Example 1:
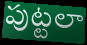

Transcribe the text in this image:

పుట్టలా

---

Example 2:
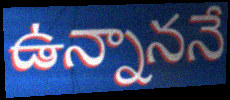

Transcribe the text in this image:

ఉన్నాననే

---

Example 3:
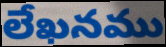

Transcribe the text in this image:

లేఖనము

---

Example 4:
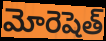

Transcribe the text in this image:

మోరెషెత్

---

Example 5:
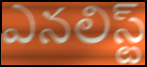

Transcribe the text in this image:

ఎనలిస్ట్